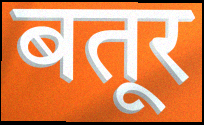
बतूर